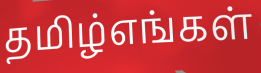
தமிழ்எங்கள்